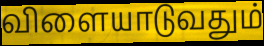
விளையாடுவதும்